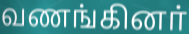
வணங்கினர்